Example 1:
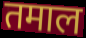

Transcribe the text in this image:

तमाल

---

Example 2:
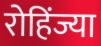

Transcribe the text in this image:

रोहिंज्या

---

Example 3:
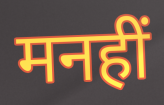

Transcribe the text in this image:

मनहीं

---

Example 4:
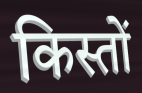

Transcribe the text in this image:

किस्तों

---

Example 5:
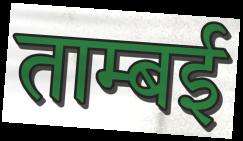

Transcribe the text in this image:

ताम्बई